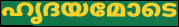
ഹൃദയമോടെ